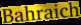
Bahraich